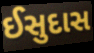
ઈસુદાસ